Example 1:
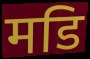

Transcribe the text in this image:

मडि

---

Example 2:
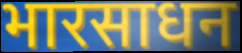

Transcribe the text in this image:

भारसाधन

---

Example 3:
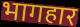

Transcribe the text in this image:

भागहार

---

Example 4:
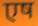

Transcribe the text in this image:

एष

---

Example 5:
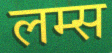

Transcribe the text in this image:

लम्स